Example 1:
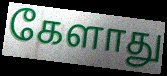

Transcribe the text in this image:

கேளாது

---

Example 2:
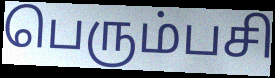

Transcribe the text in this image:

பெரும்பசி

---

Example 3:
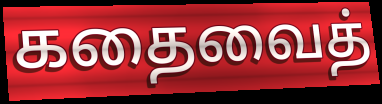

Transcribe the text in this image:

கதைவைத்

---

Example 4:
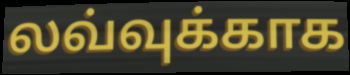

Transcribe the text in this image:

லவ்வுக்காக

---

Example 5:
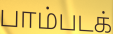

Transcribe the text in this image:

பாம்படக்